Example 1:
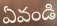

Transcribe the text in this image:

ఏవండి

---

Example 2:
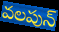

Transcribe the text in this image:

వలపున్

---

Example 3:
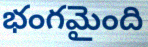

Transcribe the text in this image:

భంగమైంది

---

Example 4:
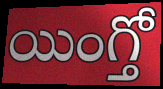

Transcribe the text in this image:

యింగ్తో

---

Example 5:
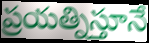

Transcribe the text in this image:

ప్రయత్నిస్తూనే